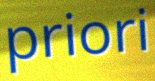
priori